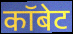
कॉबेट